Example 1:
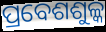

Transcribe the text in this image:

ପ୍ରବେଶଶୁଳ୍କ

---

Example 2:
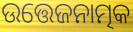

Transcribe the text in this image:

ଉତ୍ତେଜନାତ୍ମକ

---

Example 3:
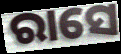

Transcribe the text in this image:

ରାସେ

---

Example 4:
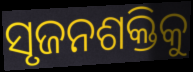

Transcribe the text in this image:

ସୃଜନଶକ୍ତିକୁ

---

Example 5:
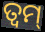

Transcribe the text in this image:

ତ୍ଵମ୍